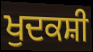
ਖੁਦਕਸ਼ੀ